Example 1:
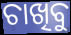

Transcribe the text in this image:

ଚାଖିବୁ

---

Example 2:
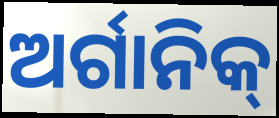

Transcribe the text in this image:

ଅର୍ଗାନିକ୍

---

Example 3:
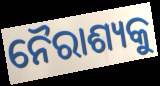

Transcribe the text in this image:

ନୈରାଶ୍ୟକୁ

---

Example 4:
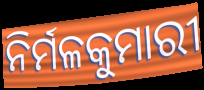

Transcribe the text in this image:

ନିର୍ମଳକୁମାରୀ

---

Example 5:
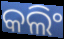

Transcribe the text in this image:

କଲିଂ